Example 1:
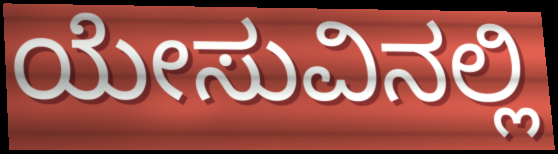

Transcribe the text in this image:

ಯೇಸುವಿನಲ್ಲಿ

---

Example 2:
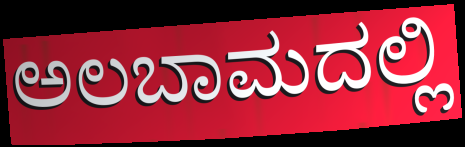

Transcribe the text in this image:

ಅಲಬಾಮದಲ್ಲಿ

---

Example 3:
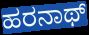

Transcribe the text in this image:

ಹರನಾಥ್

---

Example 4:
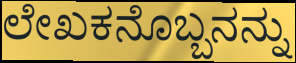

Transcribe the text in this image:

ಲೇಖಕನೊಬ್ಬನನ್ನು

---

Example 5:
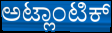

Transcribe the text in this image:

ಅಟ್ಲಾಂಟಿಕ್